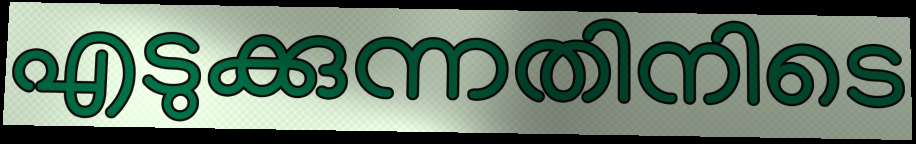
എടുക്കുന്നതിനിടെ